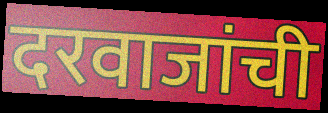
दरवाजांची